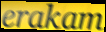
erakam